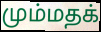
மும்மதக்